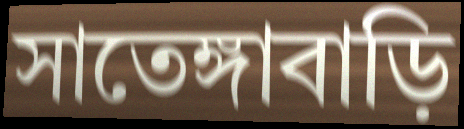
সাতেঙ্গাবাড়ি